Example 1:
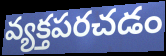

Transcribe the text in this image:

వ్యక్తపరచడం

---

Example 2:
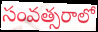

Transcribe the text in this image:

సంవత్సరాలో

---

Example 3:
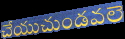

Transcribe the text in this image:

చేయుచుండవలె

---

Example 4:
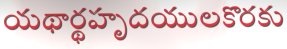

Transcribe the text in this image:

యథార్థహృదయులకొరకు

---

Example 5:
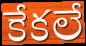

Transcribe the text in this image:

కేకలే